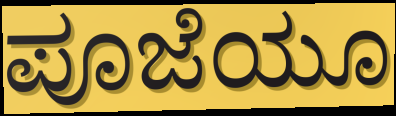
ಪೂಜೆಯೂ